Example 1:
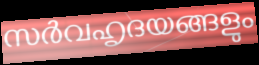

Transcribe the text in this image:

സർവഹൃദയങ്ങളും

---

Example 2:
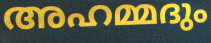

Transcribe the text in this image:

അഹമ്മദും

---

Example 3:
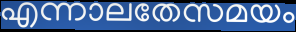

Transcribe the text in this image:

എന്നാലതേസമയം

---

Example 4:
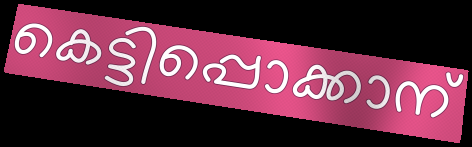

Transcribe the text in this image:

കെട്ടിപ്പൊക്കാന്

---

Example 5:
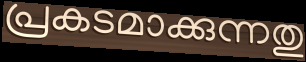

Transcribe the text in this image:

പ്രകടമാക്കുന്നതു